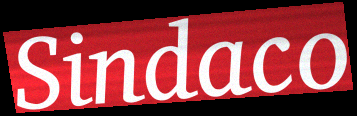
Sindaco